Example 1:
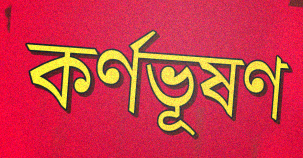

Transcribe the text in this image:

কর্ণভূষণ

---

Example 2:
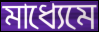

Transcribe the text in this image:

মাধ্যেমে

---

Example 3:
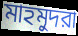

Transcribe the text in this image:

মাহমুদরা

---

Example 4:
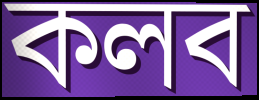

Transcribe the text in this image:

কলব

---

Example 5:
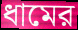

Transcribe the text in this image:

ধামের